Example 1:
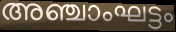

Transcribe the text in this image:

അഞ്ചാംഘട്ടം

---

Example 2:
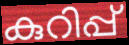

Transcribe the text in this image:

കുറിപ്പ്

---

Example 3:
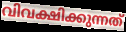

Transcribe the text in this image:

വിവക്ഷിക്കുന്നത്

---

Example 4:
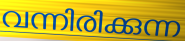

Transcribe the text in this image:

വന്നിരിക്കുന്ന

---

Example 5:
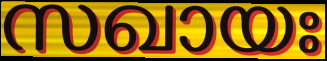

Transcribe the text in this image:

സഖായഃ